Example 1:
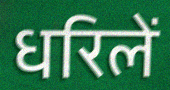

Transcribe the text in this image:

धरिलें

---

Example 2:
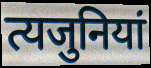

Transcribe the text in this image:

त्यजुनियां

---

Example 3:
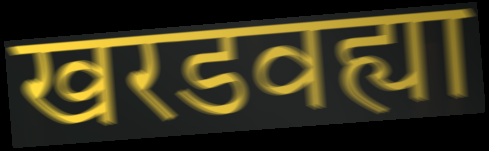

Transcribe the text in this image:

खरडवह्या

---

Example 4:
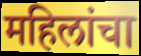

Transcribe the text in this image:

महिलांचा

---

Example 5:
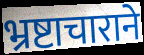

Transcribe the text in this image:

भ्रष्टाचाराने